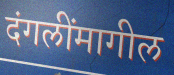
दंगलींमागील